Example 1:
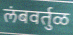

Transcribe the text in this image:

लंबवर्तुळ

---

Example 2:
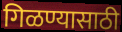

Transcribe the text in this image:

गिळण्यासाठी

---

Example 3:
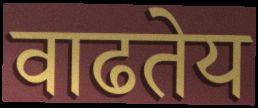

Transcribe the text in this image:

वाढतेय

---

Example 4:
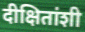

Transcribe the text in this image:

दीक्षितांशी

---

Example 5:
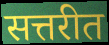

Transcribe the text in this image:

सत्तरीत